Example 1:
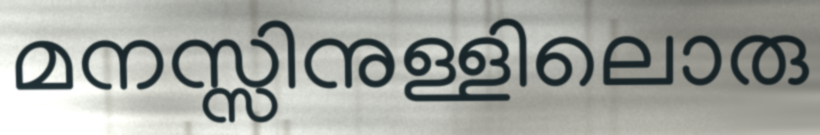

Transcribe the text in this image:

മനസ്സിനുള്ളിലൊരു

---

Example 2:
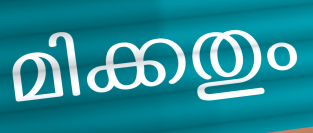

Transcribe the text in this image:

മിക്കതും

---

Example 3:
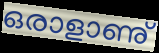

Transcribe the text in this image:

ഒരാളാണു്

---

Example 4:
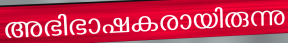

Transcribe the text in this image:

അഭിഭാഷകരായിരുന്നു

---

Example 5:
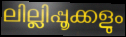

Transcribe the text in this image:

ലില്ലിപ്പൂക്കളും